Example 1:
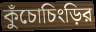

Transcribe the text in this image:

কুঁচোচিংড়ির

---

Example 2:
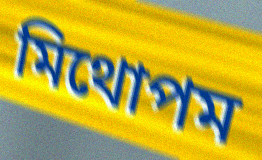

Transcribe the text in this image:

মিথোপম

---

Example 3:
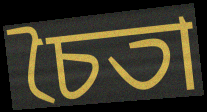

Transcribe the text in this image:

চৈতা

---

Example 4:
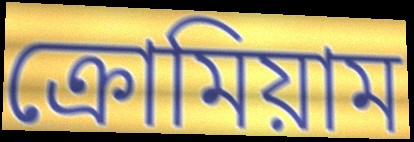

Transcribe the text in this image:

ক্রোমিয়াম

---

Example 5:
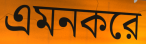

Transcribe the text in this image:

এমনকরে